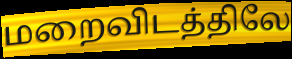
மறைவிடத்திலே